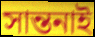
সান্তনাই